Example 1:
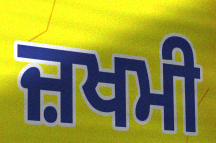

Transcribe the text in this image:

ਜ਼ਖਮੀ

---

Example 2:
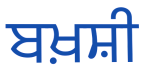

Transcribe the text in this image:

ਬਖ਼ਸ਼ੀ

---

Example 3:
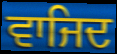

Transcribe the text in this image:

ਵਾਜਿਦ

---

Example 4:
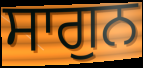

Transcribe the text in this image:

ਸਾਗੁਨ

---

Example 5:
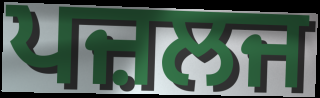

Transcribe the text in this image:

ਪਜ਼ਲਜ